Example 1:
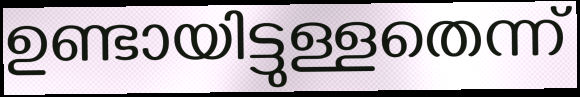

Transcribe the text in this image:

ഉണ്ടായിട്ടുള്ളതെന്ന്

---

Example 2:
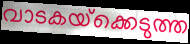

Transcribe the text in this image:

വാടകയ്‌ക്കെടുത്ത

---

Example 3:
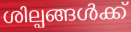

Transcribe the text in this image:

ശില്പങ്ങൾക്ക്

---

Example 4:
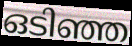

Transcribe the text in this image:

ഒടിഞ്ഞ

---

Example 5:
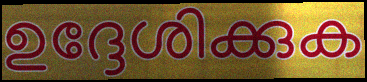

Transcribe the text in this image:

ഉദ്ദേശിക്കുക